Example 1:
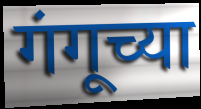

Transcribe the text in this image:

गंगूच्या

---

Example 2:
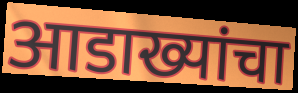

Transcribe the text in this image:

आडाख्यांचा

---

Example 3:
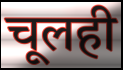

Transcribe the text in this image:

चूलही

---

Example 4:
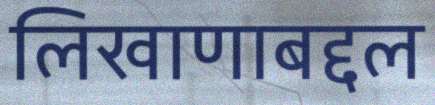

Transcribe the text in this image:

लिखाणाबद्दल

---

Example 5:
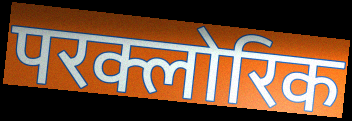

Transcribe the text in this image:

परक्लोरिक